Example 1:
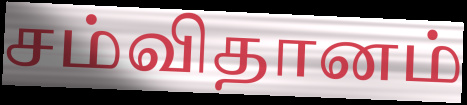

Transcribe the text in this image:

சம்விதானம்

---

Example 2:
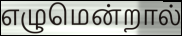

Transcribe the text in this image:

எழுமென்றால்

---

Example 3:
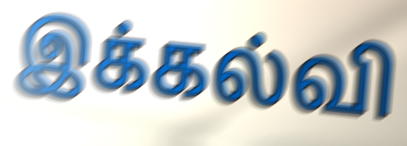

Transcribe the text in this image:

இக்கல்வி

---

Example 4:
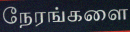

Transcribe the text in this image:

நேரங்களை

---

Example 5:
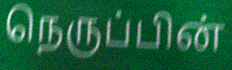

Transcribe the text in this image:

நெருப்பின்